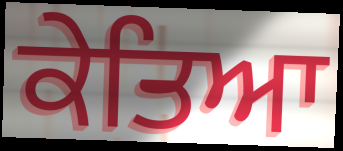
ਕੇਤਿਆ